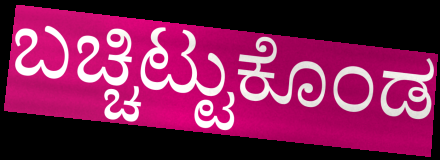
ಬಚ್ಚಿಟ್ಟುಕೊಂಡ